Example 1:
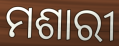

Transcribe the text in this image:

ମଶାରୀ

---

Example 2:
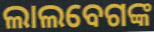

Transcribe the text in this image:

ଲାଲବେଗଙ୍କ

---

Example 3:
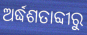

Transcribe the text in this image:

ଅର୍ଦ୍ଧଶତାବ୍ଦୀରୁ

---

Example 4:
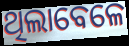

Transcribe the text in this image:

ଥିଲାବେଳେ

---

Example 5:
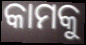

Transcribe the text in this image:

କାମକୁ